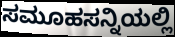
ಸಮೂಹಸನ್ನಿಯಲ್ಲಿ